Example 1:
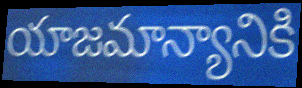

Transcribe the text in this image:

యాజమాన్యానికి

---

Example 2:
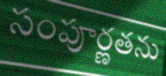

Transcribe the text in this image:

సంపూర్ణతను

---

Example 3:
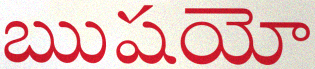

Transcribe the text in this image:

ఋషయో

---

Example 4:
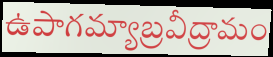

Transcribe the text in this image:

ఉపాగమ్యాబ్రవీద్రామం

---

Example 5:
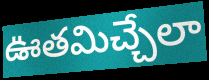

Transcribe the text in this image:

ఊతమిచ్చేలా